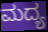
ಮದ್ಯ